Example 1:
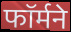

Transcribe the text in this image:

फॉर्मने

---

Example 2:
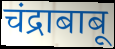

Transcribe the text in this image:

चंद्राबाबू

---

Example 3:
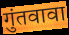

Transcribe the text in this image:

गुंतवावा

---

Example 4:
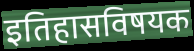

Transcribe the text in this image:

इतिहासविषयक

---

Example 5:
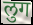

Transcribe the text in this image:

लुग